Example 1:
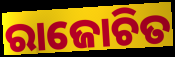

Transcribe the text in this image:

ରାଜୋଚିତ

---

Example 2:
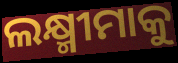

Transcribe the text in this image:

ଲକ୍ଷ୍ମୀମାକୁ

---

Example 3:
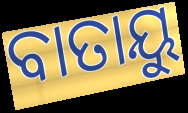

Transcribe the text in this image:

ବାତାୟୁ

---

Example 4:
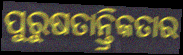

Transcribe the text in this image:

ପୁରୁଷତାନ୍ତ୍ରିକତାର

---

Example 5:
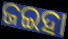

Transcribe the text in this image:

ଜଇହା